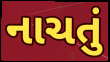
નાચતું